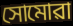
সোমোৱা